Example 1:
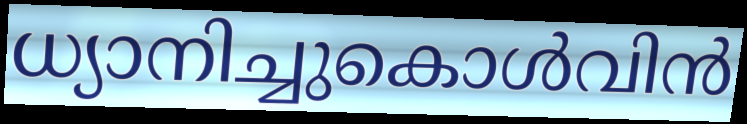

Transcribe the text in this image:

ധ്യാനിച്ചുകൊൾവിൻ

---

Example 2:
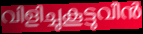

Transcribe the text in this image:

വിളിച്ചുകൂട്ടുവീൻ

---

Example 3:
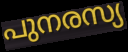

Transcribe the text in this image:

പുനരസ്യ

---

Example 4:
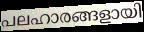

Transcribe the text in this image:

പലഹാരങ്ങളായി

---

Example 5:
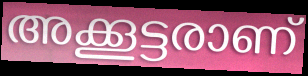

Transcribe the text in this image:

അക്കൂട്ടരാണ്